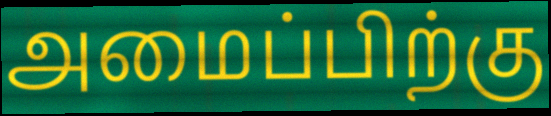
அமைப்பிற்கு